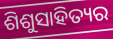
ଶିଶୁସାହିତ୍ୟର